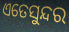
ଏତେସୁନ୍ଦର